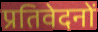
प्रतिवेदनों